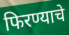
फिरण्याचे